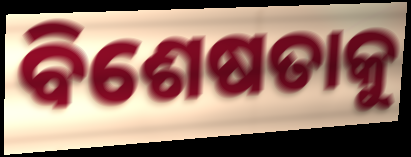
ବିଶେଷତାକୁ